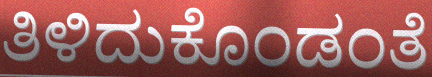
ತಿಳಿದುಕೊಂಡಂತೆ